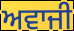
ਅਵਾਜੀ